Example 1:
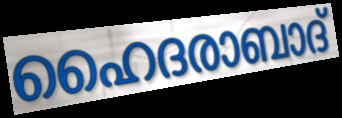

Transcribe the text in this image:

ഹൈദരാബാദ്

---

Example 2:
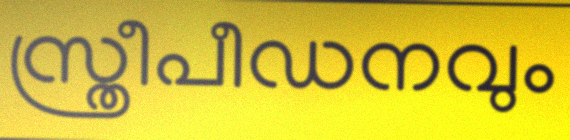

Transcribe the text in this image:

സ്ത്രീപീഡനവും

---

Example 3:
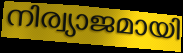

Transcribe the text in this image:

നിര്വ്യാജമായി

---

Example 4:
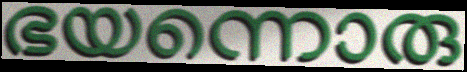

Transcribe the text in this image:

ഭയന്നൊരു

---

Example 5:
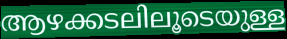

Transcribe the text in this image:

ആഴക്കടലിലൂടെയുള്ള